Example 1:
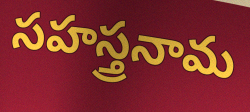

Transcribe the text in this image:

సహస్త్రనామ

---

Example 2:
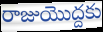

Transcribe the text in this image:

రాజుయొద్దకు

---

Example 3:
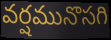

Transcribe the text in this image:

వర్షమునొసగి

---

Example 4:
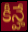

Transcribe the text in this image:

కీన్హే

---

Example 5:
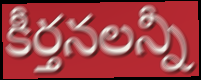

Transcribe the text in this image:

కీర్తనలన్నీ